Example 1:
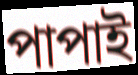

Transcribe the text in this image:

পাপাই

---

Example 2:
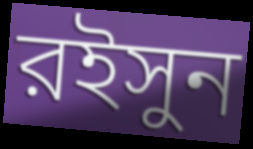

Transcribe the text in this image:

রইসুন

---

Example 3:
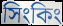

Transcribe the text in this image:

সিংকিং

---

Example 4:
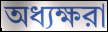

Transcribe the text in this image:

অধ্যক্ষরা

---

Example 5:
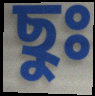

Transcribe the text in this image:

ছুঃ